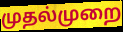
முதல்முறை